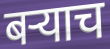
बर्‍याच